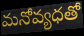
మనోవ్యధతో